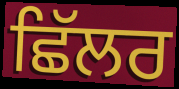
ਛਿੱਲਰ